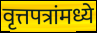
वृत्तपत्रांमध्ये